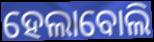
ହେଲାବୋଲି